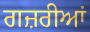
ਗਜ਼ਰੀਆਂ